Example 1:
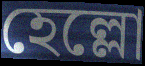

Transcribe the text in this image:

হেল্লো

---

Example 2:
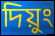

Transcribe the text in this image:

দিয়ুং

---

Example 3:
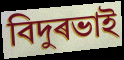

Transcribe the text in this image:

বিদুৰভাই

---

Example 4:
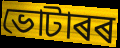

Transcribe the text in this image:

ভোটাৰৰ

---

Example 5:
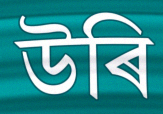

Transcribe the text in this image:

উৰি